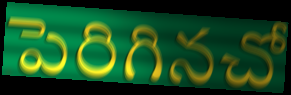
పెరిగినచో